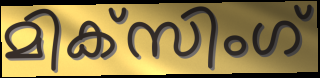
മിക്‌സിംഗ്